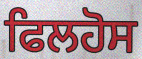
ਫਿਲਹੋਸ